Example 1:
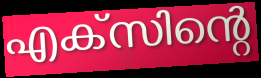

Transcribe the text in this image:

എക്‌സിന്റെ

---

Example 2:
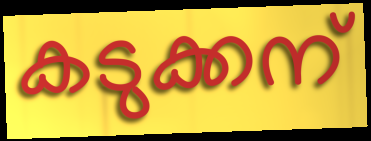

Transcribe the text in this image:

കടുക്കന്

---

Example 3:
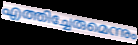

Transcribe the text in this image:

എത്തിച്ചേരുമെന്നും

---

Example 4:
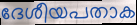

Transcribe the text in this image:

ദേശീയപതാക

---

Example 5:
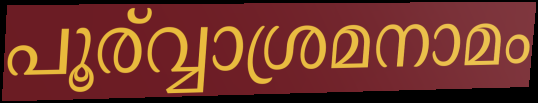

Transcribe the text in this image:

പൂര്വ്വാശ്രമനാമം